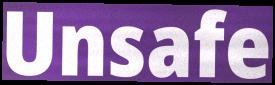
Unsafe